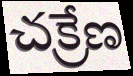
చక్రేణ